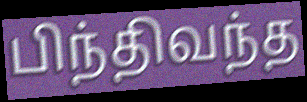
பிந்திவந்த